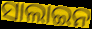
ସାଲାଇନ